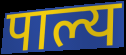
पाल्य